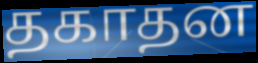
தகாதன